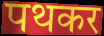
पथकर